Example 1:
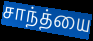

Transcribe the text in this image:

சாந்த்யை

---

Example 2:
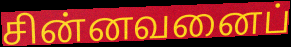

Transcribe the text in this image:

சின்னவனைப்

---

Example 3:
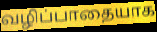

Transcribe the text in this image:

வழிப்பாதையாக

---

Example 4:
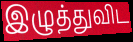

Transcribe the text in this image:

இழுத்துவிட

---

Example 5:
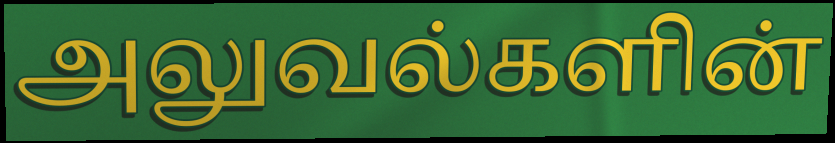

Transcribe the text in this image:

அலுவல்களின்